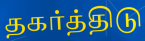
தகர்த்திடு